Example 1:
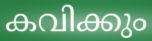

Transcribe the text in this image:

കവിക്കും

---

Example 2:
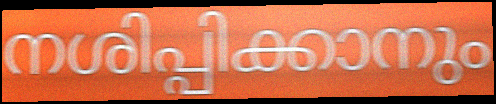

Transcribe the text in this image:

നശിപ്പിക്കാനും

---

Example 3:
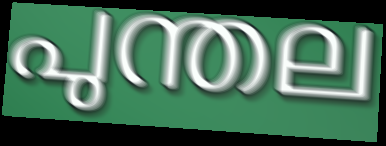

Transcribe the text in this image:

പുന്തല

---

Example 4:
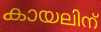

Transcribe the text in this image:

കായലിന്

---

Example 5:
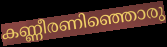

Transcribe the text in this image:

കണ്ണീരണിഞ്ഞൊരു